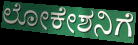
ಲೋಕೇಶನಿಗೆ